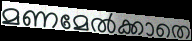
മണമേൽക്കാതെ